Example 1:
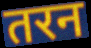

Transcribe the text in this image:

तरन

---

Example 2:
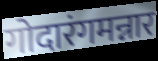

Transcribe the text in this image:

गोदारंगमन्नार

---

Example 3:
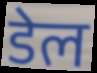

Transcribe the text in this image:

डेल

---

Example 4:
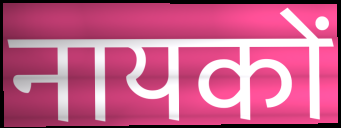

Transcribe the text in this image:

नायकों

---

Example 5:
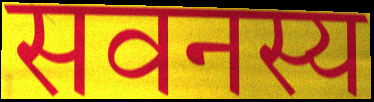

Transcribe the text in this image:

सवनस्य